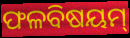
ଫଳବିଷୟମ୍